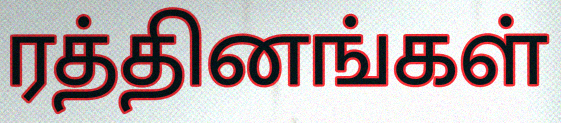
ரத்தினங்கள்